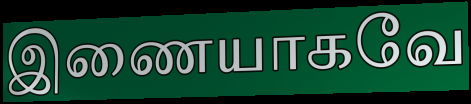
இணையாகவே